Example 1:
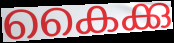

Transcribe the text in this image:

കൈക്കു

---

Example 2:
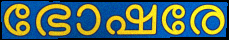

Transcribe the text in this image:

ഭോഷരേ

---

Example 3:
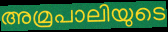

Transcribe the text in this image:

അമ്രപാലിയുടെ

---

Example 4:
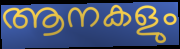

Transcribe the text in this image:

ആനകളും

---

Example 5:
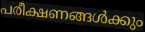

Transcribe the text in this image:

പരീക്ഷണങ്ങൾക്കും